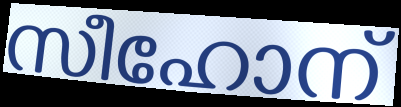
സീഹോന്